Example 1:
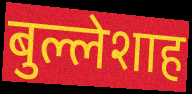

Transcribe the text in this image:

बुल्लेशाह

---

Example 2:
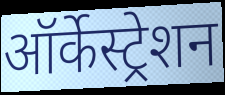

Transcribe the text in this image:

ऑर्केस्ट्रेशन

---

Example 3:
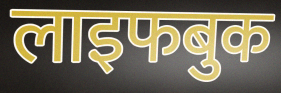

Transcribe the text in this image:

लाइफबुक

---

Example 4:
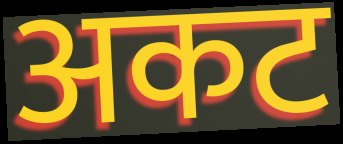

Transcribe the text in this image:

अकट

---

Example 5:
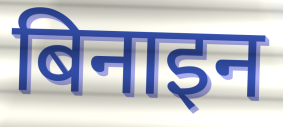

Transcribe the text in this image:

बिनाइन